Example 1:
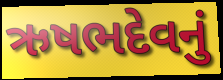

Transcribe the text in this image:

ઋષભદેવનું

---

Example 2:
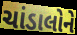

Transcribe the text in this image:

ચાંડાલોને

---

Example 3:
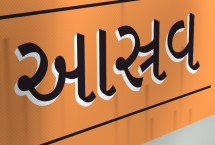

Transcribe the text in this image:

આસ્રવ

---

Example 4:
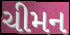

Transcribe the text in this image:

ચીમન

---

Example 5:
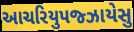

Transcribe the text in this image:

આચરિયુપજ્ઝાયેસુ